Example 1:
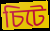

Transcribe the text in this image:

চিটে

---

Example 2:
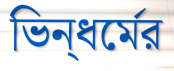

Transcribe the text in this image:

ভিন্‌ধর্মের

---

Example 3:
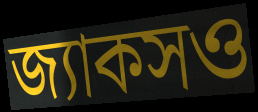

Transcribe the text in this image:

জ্যাকসও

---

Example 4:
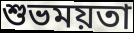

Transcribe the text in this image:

শুভময়তা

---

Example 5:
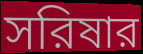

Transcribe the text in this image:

সরিষার